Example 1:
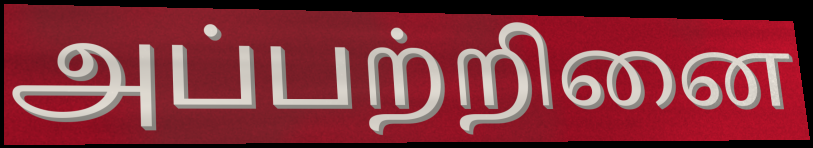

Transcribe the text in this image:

அப்பற்றினை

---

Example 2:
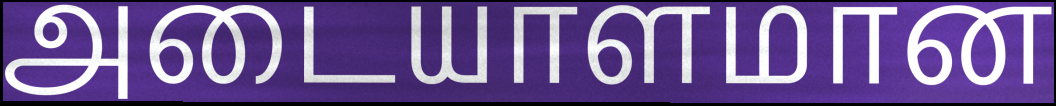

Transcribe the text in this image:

அடையாளமான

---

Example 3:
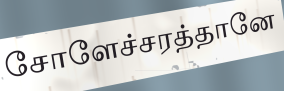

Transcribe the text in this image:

சோளேச்சரத்தானே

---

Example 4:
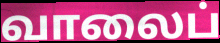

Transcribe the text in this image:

வாலைப்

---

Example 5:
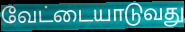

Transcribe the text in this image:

வேட்டையாடுவது